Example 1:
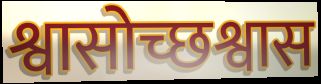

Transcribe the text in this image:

श्वासोच्छश्वास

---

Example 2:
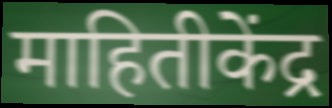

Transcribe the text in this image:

माहितीकेंद्र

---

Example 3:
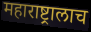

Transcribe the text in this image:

महाराष्ट्रालाच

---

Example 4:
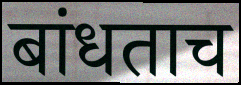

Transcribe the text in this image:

बांधताच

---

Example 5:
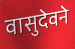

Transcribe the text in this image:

वासुदेवने